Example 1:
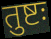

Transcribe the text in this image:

तुष्टः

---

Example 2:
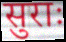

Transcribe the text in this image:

सुराः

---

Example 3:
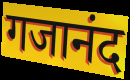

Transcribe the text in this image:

गजानंद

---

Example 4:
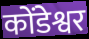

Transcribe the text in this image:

कोंडेश्वर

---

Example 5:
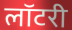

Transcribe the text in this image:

लॉटरी